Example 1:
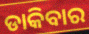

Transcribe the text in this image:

ଡାକିବାର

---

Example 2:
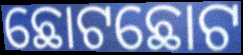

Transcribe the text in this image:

ଛୋଟଛୋଟ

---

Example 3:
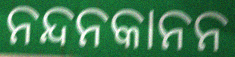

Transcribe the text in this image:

ନନ୍ଦନକାନନ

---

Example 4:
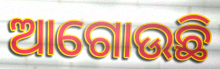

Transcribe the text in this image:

ଆଗୋଉଛି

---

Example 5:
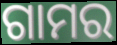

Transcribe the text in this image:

ଗାମର